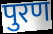
पुरण